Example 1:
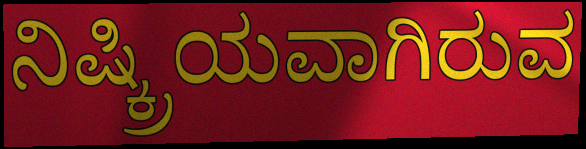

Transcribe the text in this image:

ನಿಷ್ಕ್ರಿಯವಾಗಿರುವ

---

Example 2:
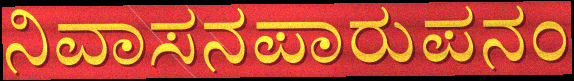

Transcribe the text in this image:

ನಿವಾಸನಪಾರುಪನಂ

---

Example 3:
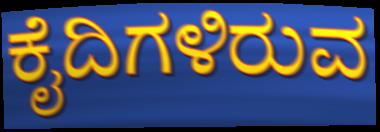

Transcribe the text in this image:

ಕೈದಿಗಳಿರುವ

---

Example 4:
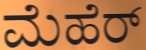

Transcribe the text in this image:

ಮೆಹೆರ್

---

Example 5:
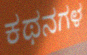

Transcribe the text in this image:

ಕಥನಗಳ